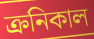
ক্রনিকাল